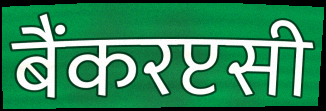
बैंकरप्टसी